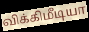
விக்கிமீடியா